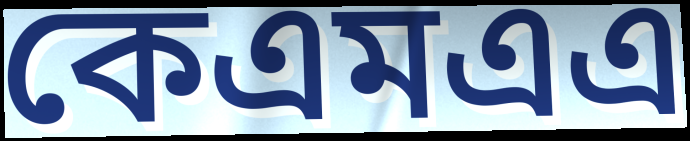
কেএমএএ